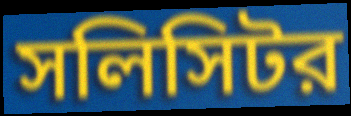
সলিসিটর